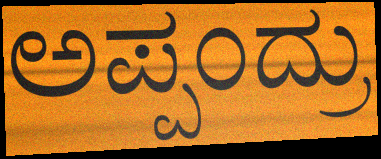
ಅಪ್ಪಂದ್ರು